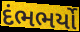
દંભભર્યો